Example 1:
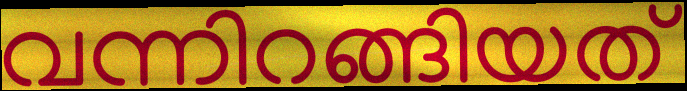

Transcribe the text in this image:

വന്നിറങ്ങിയത്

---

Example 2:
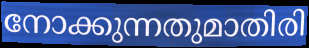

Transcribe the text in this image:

നോക്കുന്നതുമാതിരി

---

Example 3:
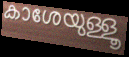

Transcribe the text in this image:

കാശേയുള്ളൂ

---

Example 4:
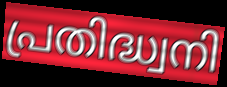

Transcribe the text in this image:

പ്രതിദ്ധ്വനി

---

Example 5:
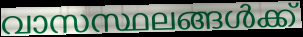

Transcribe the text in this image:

വാസസ്ഥലങ്ങൾക്ക്